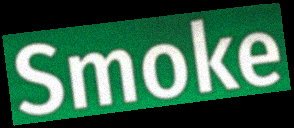
Smoke